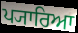
ਪ੍ਯਾਰਿਆ